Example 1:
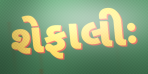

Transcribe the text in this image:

શેફાલીઃ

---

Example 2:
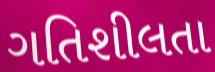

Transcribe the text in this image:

ગતિશીલતા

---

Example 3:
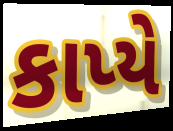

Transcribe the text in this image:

કાપ્યે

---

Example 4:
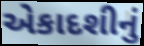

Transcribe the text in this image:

એકાદશીનું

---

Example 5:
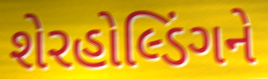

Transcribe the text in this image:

શેરહોલ્ડિંગને